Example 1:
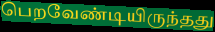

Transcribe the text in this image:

பெறவேண்டியிருந்தது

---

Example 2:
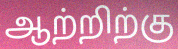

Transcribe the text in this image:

ஆற்றிற்கு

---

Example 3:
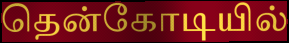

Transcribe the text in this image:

தென்கோடியில்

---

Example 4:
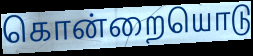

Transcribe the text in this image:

கொன்றையொடு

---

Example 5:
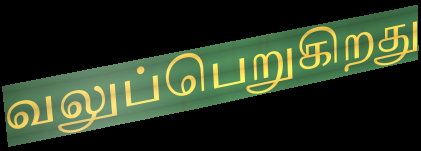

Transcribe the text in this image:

வலுப்பெறுகிறது